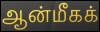
ஆன்மீகக்